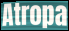
Atropa